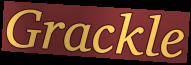
Grackle